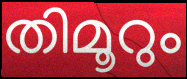
തിമൂറും